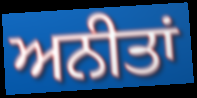
ਅਨੀਤਾਂ